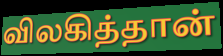
விலகித்தான்